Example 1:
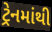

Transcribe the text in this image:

ટ્રેનમાંથી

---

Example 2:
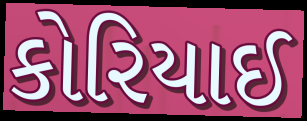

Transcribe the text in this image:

કોરિયાઈ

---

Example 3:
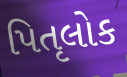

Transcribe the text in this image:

પિતૃલોક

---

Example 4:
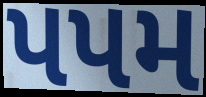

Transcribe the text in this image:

પપમ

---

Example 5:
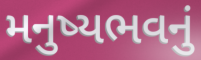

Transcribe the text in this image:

મનુષ્યભવનું